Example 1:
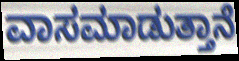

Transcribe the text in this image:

ವಾಸಮಾಡುತ್ತಾನೆ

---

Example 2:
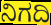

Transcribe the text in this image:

ನಿಗದಿ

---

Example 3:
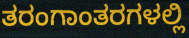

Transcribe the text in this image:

ತರಂಗಾಂತರಗಳಲ್ಲಿ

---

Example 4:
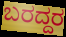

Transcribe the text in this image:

ಬರದ್ದರ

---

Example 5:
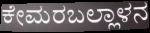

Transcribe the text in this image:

ಕೇಮರಬಲ್ಲಾಳನ